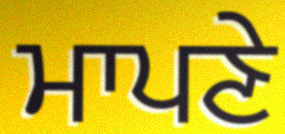
ਮਾਪਣੇ